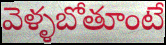
వెళ్ళబోతూంటే